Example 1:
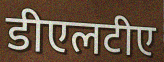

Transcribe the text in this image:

डीएलटीए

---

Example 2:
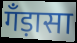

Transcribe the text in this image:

गँड़ासा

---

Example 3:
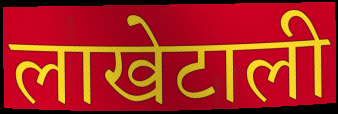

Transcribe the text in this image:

लाखेटाली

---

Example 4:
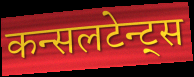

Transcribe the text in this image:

कन्सलटेन्ट्स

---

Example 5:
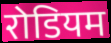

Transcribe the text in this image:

रोडियम